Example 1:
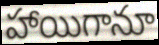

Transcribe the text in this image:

హాయిగానూ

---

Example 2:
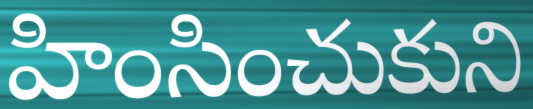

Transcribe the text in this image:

హింసించుకుని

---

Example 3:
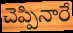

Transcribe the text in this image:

చెప్పినారే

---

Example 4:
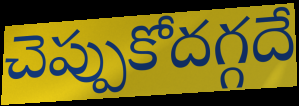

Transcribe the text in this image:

చెప్పుకోదగ్గదే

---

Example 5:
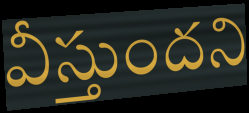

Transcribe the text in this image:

వీస్తుందని